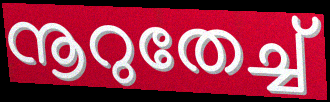
നൂറുതേച്ച്